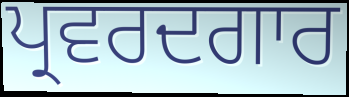
ਪ੍ਰਵਰਦਗਾਰ